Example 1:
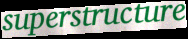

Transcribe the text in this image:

superstructure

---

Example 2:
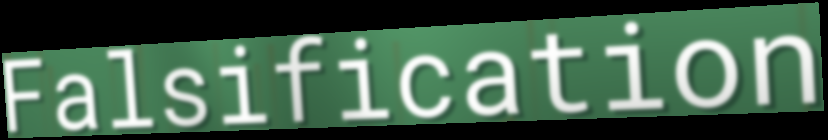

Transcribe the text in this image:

Falsification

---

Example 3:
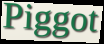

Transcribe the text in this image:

Piggot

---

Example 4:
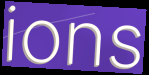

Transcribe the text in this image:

ions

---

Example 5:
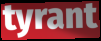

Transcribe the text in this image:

tyrant